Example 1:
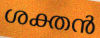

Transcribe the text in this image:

ശക്തൻ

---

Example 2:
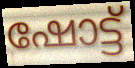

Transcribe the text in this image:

ഷോട്ട്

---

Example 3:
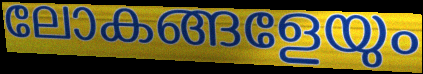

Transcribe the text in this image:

ലോകങ്ങളേയും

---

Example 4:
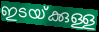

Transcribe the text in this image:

ഇടയ്‌ക്കുള്ള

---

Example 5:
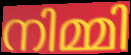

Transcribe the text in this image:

നിമ്മി